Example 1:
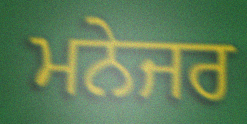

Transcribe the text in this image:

ਮਨੇਜਰ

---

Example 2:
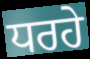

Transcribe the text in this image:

ਧਰਹੇ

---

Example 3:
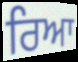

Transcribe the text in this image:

ਰਿਆ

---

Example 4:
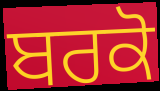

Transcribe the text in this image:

ਬਰਕੋ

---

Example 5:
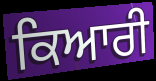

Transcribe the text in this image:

ਕਿਆਰੀ